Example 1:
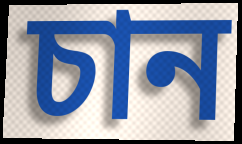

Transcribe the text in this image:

চান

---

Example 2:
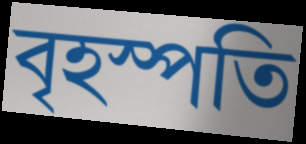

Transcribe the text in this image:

বৃহস্পতি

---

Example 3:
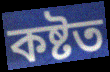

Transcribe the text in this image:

কষ্টত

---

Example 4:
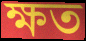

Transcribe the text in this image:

ক্ষত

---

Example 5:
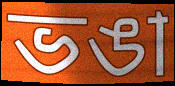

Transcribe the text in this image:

ভঙা